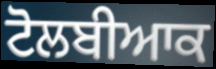
ਟੋਲਬੀਆਕ